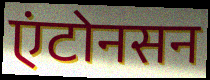
एंटोनसन